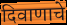
दिवाणाचे